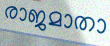
രാജമാതാ